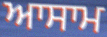
ਆਸਾਮ